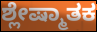
ಶ್ಲೇಷ್ಮಾತಕ